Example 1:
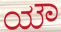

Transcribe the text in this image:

ಯೌ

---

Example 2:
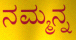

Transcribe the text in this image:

ನಮ್ಮನ್ನ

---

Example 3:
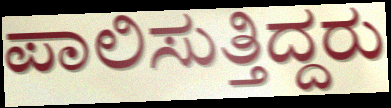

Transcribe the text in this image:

ಪಾಲಿಸುತ್ತಿದ್ದರು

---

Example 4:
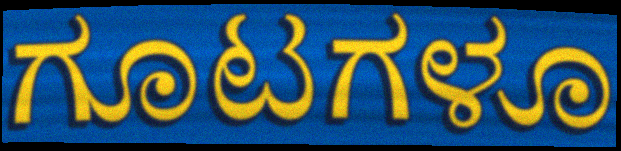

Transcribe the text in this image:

ಗೂಟಗಳೂ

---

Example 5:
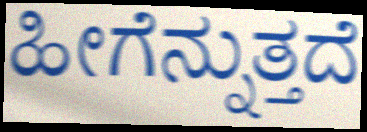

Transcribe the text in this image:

ಹೀಗೆನ್ನುತ್ತದೆ